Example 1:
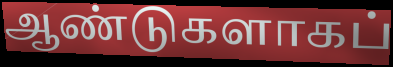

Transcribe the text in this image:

ஆண்டுகளாகப்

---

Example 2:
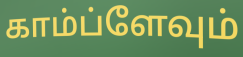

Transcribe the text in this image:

காம்ப்ளேவும்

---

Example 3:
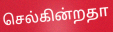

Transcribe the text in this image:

செல்கின்றதா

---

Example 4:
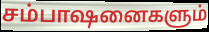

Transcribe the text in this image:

சம்பாஷனைகளும்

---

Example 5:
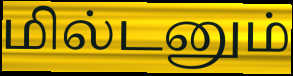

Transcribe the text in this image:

மில்டனும்